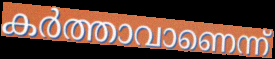
കർത്താവാണെന്ന്